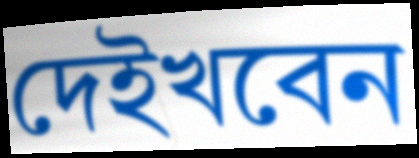
দেইখবেন